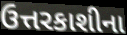
ઉત્તરકાશીના